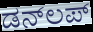
ಡನ್‌ಲಪ್